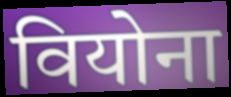
वियोना